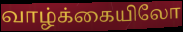
வாழ்க்கையிலோ